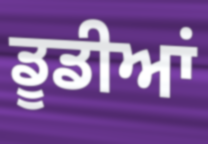
ਡੂਡੀਆਂ